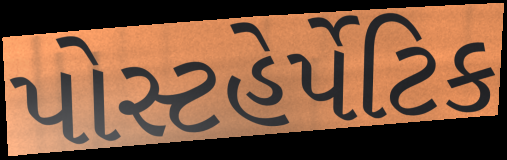
પોસ્ટહેર્પેટિક